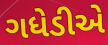
ગધેડીએ